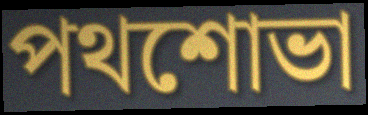
পথশোভা